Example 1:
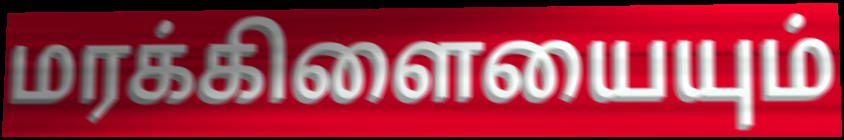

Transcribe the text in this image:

மரக்கிளையையும்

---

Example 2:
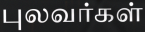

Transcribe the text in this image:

புலவர்கள்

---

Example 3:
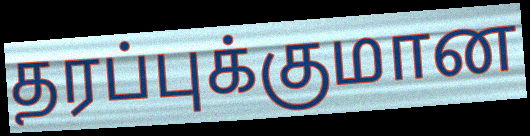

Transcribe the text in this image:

தரப்புக்குமான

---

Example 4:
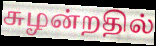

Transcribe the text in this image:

சுழன்றதில்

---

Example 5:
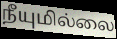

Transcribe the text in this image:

நீயுமில்லை